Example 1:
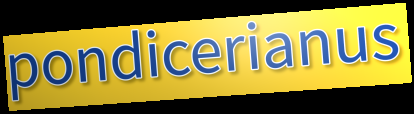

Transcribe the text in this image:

pondicerianus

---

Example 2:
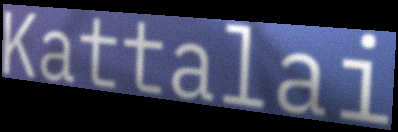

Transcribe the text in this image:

Kattalai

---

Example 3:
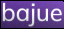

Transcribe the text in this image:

bajue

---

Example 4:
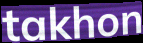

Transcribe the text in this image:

takhon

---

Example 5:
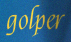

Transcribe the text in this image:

golper